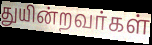
துயின்றவர்கள்